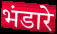
भंडारे